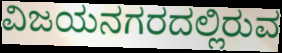
ವಿಜಯನಗರದಲ್ಲಿರುವ